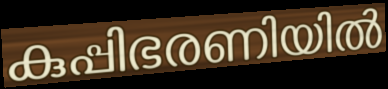
കുപ്പിഭരണിയിൽ